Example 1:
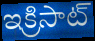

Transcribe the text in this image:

ఇక్రిసాట్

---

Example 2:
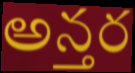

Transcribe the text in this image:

అన్తర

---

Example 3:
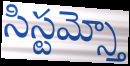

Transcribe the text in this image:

సిస్టమ్స్తో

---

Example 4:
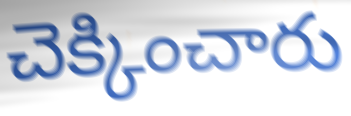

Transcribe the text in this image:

చెక్కించారు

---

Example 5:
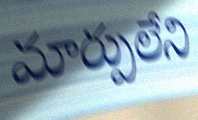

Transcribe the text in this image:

మార్పులేని